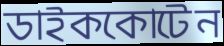
ডাইককোটেন